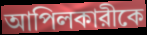
আপিলকারীকে